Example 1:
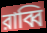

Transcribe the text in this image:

রাব্বি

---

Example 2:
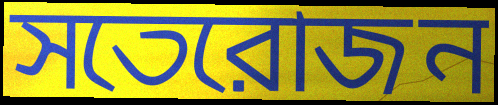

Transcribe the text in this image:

সতেরোজন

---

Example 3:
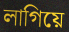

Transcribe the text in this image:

লাগিয়ে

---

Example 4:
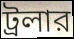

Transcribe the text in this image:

ট্রলার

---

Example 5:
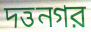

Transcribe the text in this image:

দত্তনগর